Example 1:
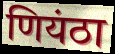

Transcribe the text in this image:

णियंठा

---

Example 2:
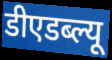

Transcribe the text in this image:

डीएडब्ल्यू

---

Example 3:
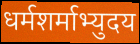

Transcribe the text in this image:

धर्मशर्माभ्युदय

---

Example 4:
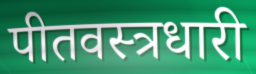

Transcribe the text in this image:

पीतवस्त्रधारी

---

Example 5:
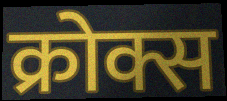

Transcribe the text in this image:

क्रोक्स